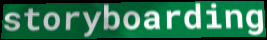
storyboarding